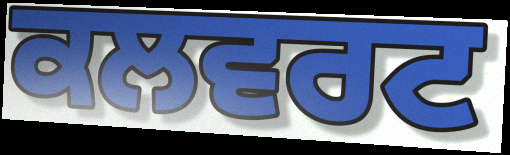
ਕਲਵਰਟ